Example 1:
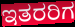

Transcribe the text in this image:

ಇತರರಿಗ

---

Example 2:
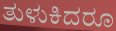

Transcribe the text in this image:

ತುಳುಕಿದರೂ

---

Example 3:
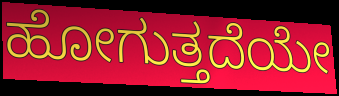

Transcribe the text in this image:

ಹೋಗುತ್ತದೆಯೇ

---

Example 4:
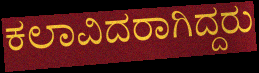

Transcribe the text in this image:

ಕಲಾವಿದರಾಗಿದ್ದರು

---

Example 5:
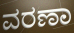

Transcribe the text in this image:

ವರಣಾ